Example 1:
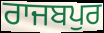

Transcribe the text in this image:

ਰਾਜਬਪੁਰ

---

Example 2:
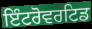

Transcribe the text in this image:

ਇੰਟਰੋਵਰਟਿਡ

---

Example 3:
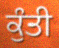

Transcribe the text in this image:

ਕੁੰਤੀ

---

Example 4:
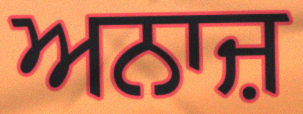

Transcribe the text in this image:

ਅਨਾਜ਼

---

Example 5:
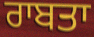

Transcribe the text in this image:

ਰਾਬਤਾ